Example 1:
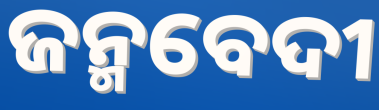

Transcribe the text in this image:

ଜନ୍ମବେଦୀ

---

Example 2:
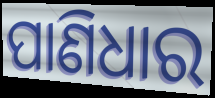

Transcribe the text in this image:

ପାଣିଧାର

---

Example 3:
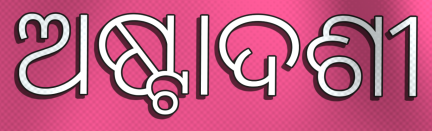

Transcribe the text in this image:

ଅଷ୍ଟାଦଶୀ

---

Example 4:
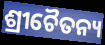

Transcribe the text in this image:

ଶ୍ରୀଚୈତନ୍ୟ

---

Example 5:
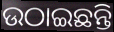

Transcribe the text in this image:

ଉଠାଇଛନ୍ତି